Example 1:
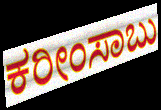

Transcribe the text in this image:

ಕರೀಂಸಾಬು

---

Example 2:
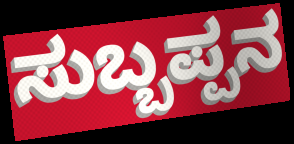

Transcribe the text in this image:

ಸುಬ್ಬಪ್ಪನ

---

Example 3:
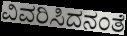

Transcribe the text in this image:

ವಿವರಿಸಿದನಂತೆ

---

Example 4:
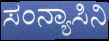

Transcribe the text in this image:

ಸಂನ್ಯಾಸಿನಿ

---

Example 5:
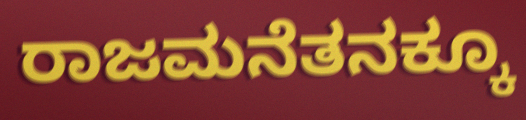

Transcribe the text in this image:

ರಾಜಮನೆತನಕ್ಕೂ